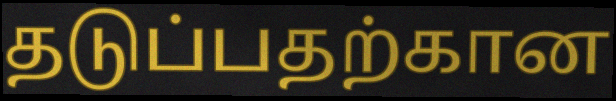
தடுப்பதற்கான